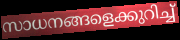
സാധനങ്ങളെക്കുറിച്ച്